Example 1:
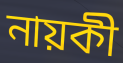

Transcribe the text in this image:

নায়কী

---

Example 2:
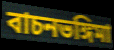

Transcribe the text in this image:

বাচনভঙ্গিমা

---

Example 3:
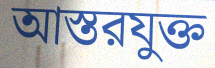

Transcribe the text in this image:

আস্তরযুক্ত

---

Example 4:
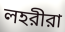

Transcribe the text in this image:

লহরীরা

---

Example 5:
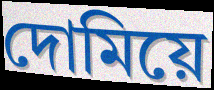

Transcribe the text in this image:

দোমিয়ে